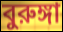
বুরুঙ্গা